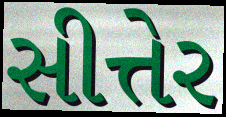
સીત્તેર